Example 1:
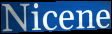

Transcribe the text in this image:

Nicene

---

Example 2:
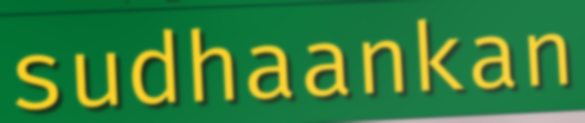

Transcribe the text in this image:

sudhaankan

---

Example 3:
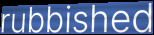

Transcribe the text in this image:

rubbished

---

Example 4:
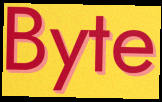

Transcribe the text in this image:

Byte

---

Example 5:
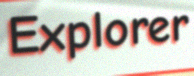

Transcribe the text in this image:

Explorer